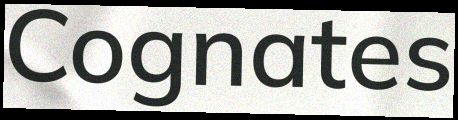
Cognates